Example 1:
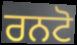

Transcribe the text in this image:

ਰਨਟੋ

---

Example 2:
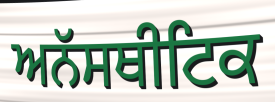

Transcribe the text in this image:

ਅਨੱਸਥੀਟਿਕ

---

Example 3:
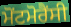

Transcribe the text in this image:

ਮੋਂਟਮੋਰੈਂਸੀ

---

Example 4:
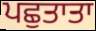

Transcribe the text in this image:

ਪਛੁਤਾਤਾ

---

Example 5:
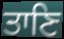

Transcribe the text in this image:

ਤਾਣਿ